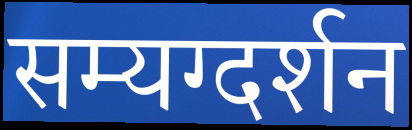
सम्यग्दर्शन